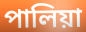
পালিয়া